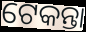
ଟେକନ୍ତା